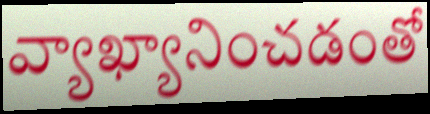
వ్యాఖ్యానించడంతో